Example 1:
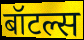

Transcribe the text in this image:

बॉटल्स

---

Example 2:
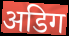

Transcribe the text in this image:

अडिग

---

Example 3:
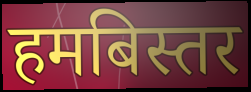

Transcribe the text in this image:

हमबिस्तर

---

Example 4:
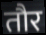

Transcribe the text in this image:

तौर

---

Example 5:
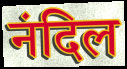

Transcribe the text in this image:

नंदिल